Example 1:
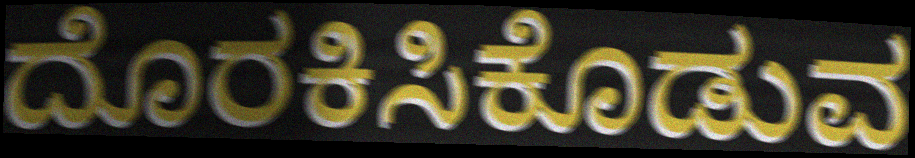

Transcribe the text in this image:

ದೊರಕಿಸಿಕೊಡುವ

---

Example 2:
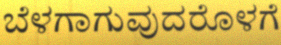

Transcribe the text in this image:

ಬೆಳಗಾಗುವುದರೊಳಗೆ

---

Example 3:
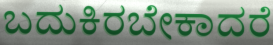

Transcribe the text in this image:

ಬದುಕಿರಬೇಕಾದರೆ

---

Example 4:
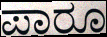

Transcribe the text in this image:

ಪಾರೂ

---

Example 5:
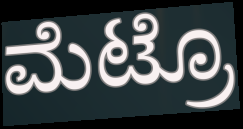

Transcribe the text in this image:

ಮೆಟ್ರೊ